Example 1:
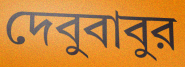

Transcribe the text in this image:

দেবুবাবুর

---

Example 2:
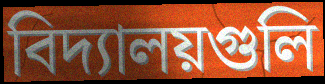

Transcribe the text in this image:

বিদ্যালয়গুলি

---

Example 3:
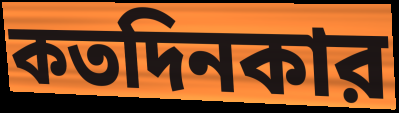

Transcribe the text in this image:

কতদিনকার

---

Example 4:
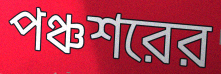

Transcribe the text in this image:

পঞ্চশরের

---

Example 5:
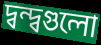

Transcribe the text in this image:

দ্বন্দ্বগুলো